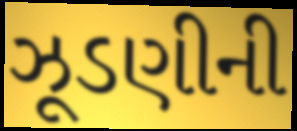
ઝૂડણીની